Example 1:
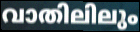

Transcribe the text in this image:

വാതിലിലും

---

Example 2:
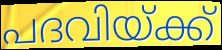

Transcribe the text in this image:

പദവിയ്ക്ക്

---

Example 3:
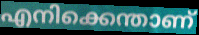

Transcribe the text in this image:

എനിക്കെന്താണ്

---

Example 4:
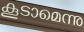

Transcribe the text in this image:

കൂടാമെന്നു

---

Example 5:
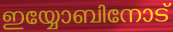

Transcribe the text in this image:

ഇയ്യോബിനോട്